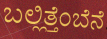
ಬಲ್ಲಿತ್ತೆಂಬೆನೆ